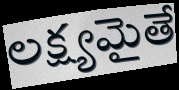
లక్ష్యమైతే